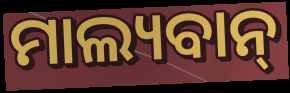
ମାଲ୍ୟବାନ୍